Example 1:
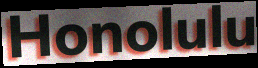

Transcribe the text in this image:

Honolulu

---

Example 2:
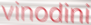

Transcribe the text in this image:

vinodini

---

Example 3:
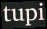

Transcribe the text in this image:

tupi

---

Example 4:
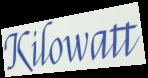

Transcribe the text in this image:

Kilowatt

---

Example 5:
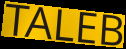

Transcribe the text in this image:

TALEB